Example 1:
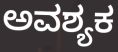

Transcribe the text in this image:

ಅವಶ್ಯಕ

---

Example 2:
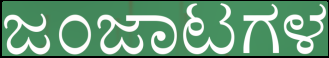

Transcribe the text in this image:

ಜಂಜಾಟಗಳ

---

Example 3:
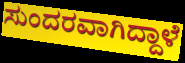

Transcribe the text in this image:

ಸುಂದರವಾಗಿದ್ದಾಳೆ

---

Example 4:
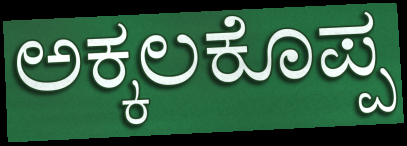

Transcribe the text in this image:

ಅಕ್ಕಲಕೊಪ್ಪ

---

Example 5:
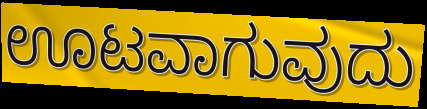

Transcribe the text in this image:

ಊಟವಾಗುವುದು